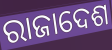
ରାଜାଦେଶ